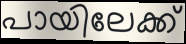
പായിലേക്ക്